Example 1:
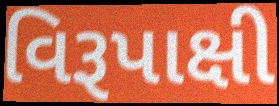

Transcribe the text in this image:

વિરૂપાક્ષી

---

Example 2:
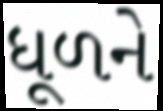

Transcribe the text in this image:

ધૂળને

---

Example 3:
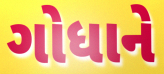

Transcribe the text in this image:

ગોધાને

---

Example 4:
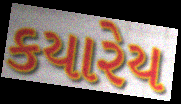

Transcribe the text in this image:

કયારેય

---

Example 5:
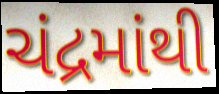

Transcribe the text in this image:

ચંદ્રમાંથી